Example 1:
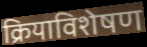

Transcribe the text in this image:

क्रियाविशेषण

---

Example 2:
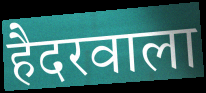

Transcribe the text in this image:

हैदरवाला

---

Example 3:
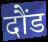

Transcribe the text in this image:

दौंड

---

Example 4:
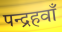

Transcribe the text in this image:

पन्द्रहवाँ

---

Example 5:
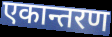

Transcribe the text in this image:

एकान्तरण